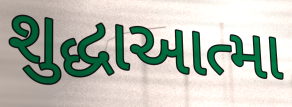
શુદ્ધાઆત્મા